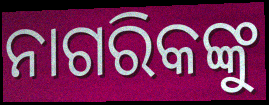
ନାଗରିକଙ୍କୁ